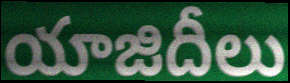
యాజిదీలు